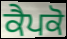
ਕੈਪਕੋ